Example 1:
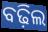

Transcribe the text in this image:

ବଢ଼ିଲ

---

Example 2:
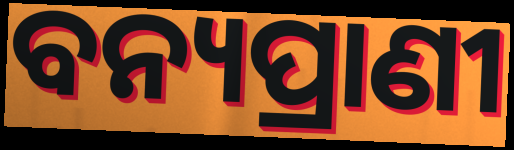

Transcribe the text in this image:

ବନ୍ୟପ୍ରାଣୀ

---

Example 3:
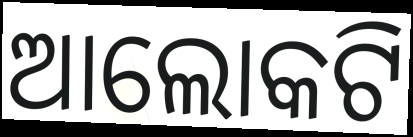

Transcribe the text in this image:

ଆଲୋକଟି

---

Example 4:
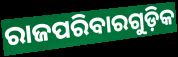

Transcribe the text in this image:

ରାଜପରିବାରଗୁଡ଼ିକ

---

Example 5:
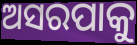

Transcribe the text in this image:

ଅସରପାକୁ